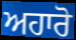
ਅਹਾਰੋ